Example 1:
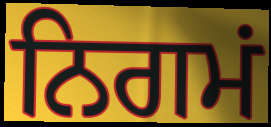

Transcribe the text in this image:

ਨਿਗਮਂ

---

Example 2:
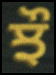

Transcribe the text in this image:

ਝੌ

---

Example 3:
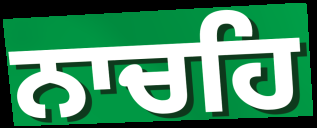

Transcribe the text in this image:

ਨਾਚਹਿ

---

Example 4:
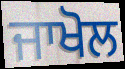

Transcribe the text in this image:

ਜਾਖੋਲ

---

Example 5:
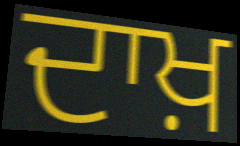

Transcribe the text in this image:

ਦਾਖ਼